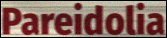
Pareidolia